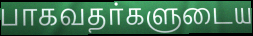
பாகவதர்களுடைய